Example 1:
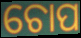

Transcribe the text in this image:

ଚୋପ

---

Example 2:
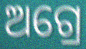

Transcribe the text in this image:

ଅଗ୍ରେ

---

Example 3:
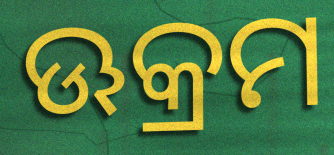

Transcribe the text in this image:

ଊକ୍ରମ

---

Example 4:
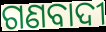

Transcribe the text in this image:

ଗଣବାଦୀ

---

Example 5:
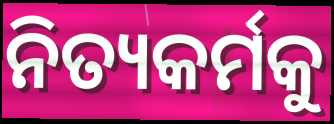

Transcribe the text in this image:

ନିତ୍ୟକର୍ମକୁ